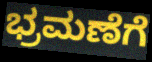
ಭ್ರಮಣೆಗೆ